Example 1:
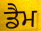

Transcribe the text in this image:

ਡੈਮ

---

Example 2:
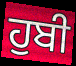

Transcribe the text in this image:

ਹੁਬੀ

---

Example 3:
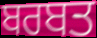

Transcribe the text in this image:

ਬਰਬਤ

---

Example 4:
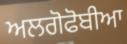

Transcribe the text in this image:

ਅਲਗੋਫੋਬੀਆ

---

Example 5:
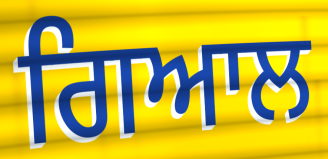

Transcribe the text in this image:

ਗਿਆਲ